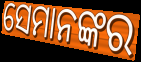
ସେମାନଙ୍କର